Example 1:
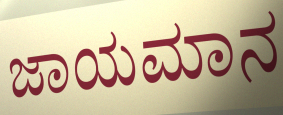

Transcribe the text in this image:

ಜಾಯಮಾನ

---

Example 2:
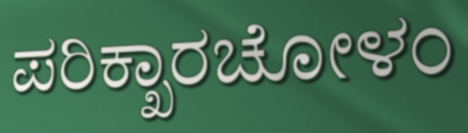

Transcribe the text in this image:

ಪರಿಕ್ಖಾರಚೋಳಂ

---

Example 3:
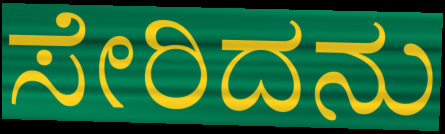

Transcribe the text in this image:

ಸೇರಿದನು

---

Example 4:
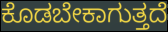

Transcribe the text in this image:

ಕೊಡಬೇಕಾಗುತ್ತದೆ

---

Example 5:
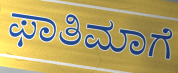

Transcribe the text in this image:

ಫಾತಿಮಾಗೆ